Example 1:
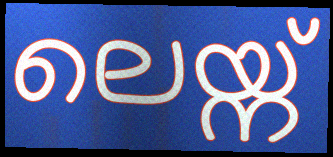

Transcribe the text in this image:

ലെയ്ന്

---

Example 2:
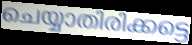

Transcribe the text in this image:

ചെയ്യാതിരിക്കട്ടെ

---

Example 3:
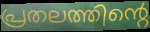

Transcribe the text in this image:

പ്രതലത്തിന്റെ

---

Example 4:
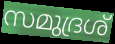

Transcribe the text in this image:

സമുദ്രശ്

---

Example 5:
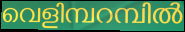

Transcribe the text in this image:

വെളിമ്പറമ്പിൽ